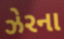
ઝેરના